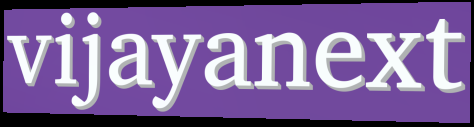
vijayanext